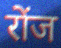
रोंज